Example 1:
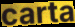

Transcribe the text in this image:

carta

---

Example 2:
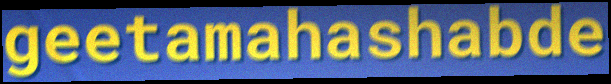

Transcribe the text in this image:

geetamahashabde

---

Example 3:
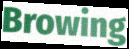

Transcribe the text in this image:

Browing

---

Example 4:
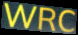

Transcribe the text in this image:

WRC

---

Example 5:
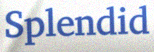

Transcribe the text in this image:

Splendid